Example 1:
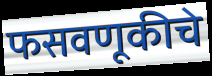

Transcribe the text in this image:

फसवणूकीचे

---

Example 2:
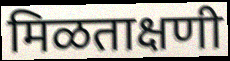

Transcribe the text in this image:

मिळताक्षणी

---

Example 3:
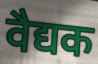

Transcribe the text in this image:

वैद्यक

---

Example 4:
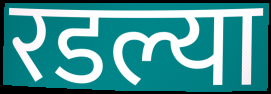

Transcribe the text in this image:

रडल्या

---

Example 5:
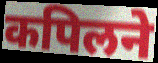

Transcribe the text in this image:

कपिलने